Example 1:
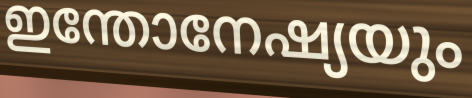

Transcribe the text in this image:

ഇന്തോനേഷ്യയും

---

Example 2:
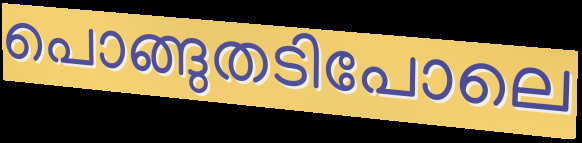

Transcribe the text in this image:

പൊങ്ങുതടിപോലെ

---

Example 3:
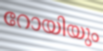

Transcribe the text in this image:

റോയിയും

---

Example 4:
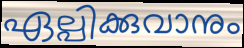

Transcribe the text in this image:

ഏല്പിക്കുവാനും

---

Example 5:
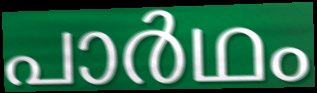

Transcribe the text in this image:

പാർഥം